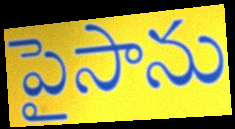
పైసాను